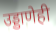
उड्डाणेही